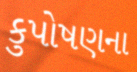
કુપોષણના